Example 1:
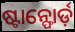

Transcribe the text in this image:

ଷ୍ଟାନ୍ଫୋର୍ଡ଼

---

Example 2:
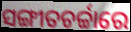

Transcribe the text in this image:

ସଙ୍ଗୀତଚର୍ଚ୍ଚାରେ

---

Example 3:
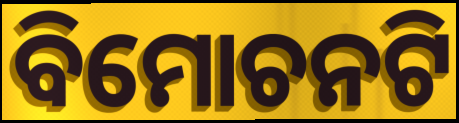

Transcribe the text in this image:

ବିମୋଚନଟି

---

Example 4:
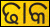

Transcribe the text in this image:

ଢାକ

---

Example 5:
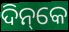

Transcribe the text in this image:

ଦିନ୍‌କେ